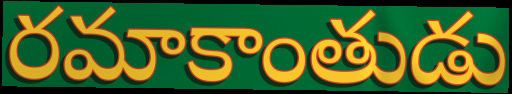
రమాకాంతుడు